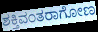
ಶಕ್ತಿವಂತರಾಗೋಣ